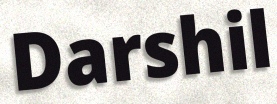
Darshil